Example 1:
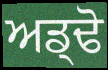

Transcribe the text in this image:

ਅਡ੍ਢੋ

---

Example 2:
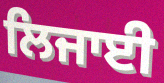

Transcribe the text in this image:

ਲਿਜਾਈ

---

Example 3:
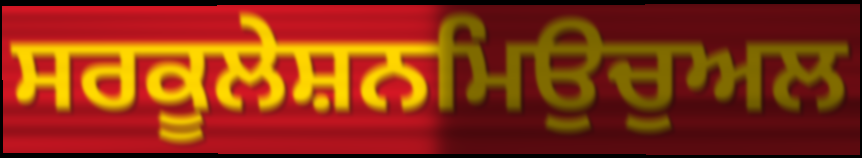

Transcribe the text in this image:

ਸਰਕੂਲੇਸ਼ਨਮਿਉਚੁਅਲ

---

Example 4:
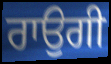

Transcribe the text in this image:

ਰਾਉਗੀ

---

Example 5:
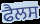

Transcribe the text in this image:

ਫੈਲਸ